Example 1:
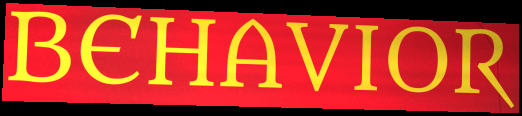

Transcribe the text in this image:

BEHAVIOR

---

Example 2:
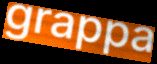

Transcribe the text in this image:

grappa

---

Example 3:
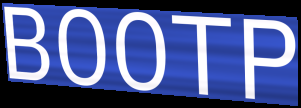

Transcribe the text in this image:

BOOTP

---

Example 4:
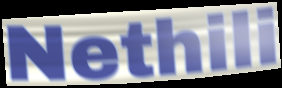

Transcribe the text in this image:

Nethili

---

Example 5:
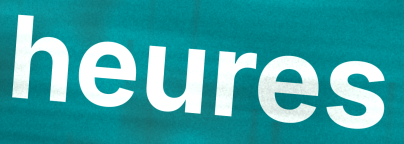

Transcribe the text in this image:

heures